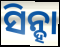
ସିନ୍ହା